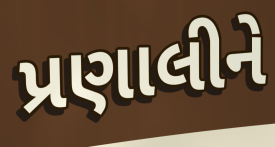
પ્રણાલીને